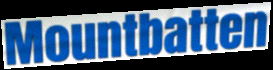
Mountbatten